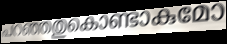
പറഞ്ഞതുകൊണ്ടാകുമോ